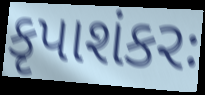
કૃપાશંકરઃ